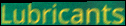
Lubricants